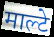
माल्टे